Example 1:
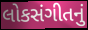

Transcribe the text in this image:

લોકસંગીતનું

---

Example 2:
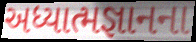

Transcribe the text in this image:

અધ્યાત્મજ્ઞાનના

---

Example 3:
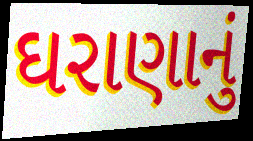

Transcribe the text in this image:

ઘરાણાનું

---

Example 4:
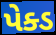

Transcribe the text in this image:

પેક્ડ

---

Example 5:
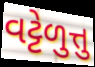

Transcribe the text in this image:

વટ્ટેળુત્તુ